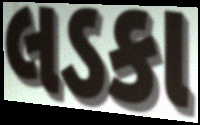
લડકા